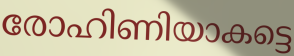
രോഹിണിയാകട്ടെ